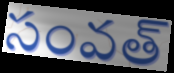
సంవత్